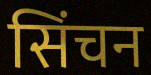
सिंचन